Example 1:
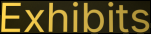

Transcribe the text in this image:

Exhibits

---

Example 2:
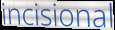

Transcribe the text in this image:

incisional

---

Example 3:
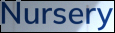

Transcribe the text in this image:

Nursery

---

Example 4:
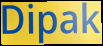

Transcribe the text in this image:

Dipak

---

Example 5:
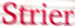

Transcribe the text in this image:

Strier